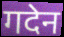
गदेन